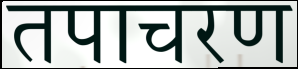
तपाचरण